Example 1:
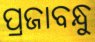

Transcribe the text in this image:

ପ୍ରଜାବନ୍ଧୁ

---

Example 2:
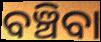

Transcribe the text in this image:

ବଞ୍ଚିବା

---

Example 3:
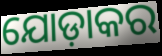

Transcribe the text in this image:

ଯୋଡ଼ାକର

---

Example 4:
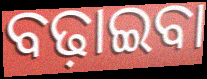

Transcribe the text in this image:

ବଢ଼ାଇବା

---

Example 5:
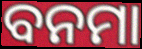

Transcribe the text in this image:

ବନମା